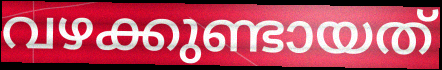
വഴക്കുണ്ടായത്